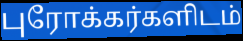
புரோக்கர்களிடம்